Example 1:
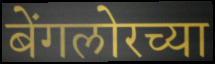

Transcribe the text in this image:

बेंगलोरच्या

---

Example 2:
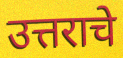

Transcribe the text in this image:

उत्तराचे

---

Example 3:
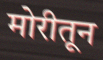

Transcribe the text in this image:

मोरीतून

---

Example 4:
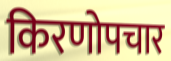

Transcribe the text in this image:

किरणोपचार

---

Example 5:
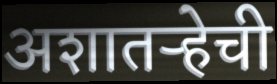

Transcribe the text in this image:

अशातऱ्हेची